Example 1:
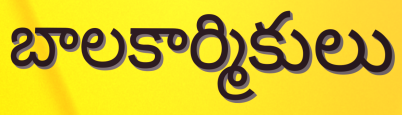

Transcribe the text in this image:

బాలకార్మికులు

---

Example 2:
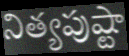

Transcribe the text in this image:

నిత్యపుష్టా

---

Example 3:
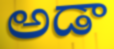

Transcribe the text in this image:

అడా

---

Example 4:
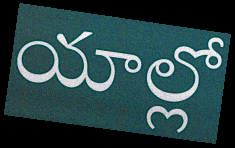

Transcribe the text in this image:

యాల్లో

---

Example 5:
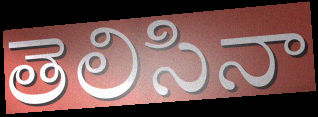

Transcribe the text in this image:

తెలిసినా